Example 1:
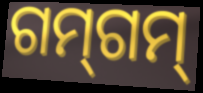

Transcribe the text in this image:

ଗମ୍‍ଗମ୍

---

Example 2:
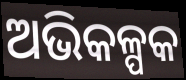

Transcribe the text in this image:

ଅଭିକଳ୍ପକ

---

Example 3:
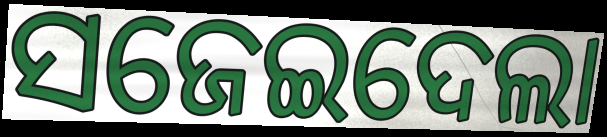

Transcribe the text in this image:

ସଜେଇଦେଲା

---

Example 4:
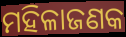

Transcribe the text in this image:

ମହିଳାଜଣକ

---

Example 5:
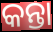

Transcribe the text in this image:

କନ୍ତା